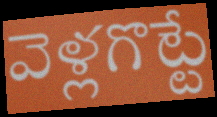
వెళ్లగొట్టే